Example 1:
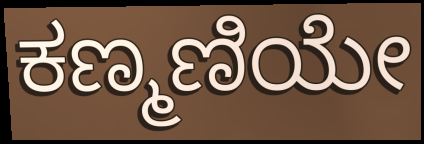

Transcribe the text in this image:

ಕಣ್ಮಣಿಯೇ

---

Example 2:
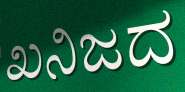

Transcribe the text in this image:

ಖನಿಜದ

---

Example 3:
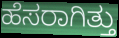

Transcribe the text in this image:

ಹೆಸರಾಗಿತ್ತು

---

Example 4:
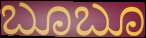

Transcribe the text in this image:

ಬೂಬೂ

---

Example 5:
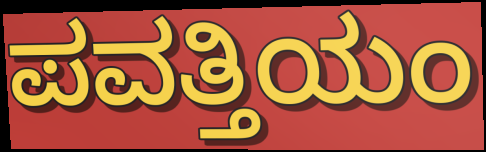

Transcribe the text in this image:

ಪವತ್ತಿಯಂ